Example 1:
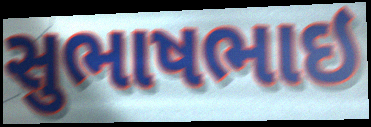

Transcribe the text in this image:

સુભાષભાઇ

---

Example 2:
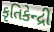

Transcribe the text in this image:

કૃતિકેન્દ્રી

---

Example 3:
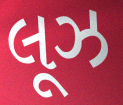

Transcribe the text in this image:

લૂઝ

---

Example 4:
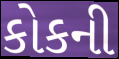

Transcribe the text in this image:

કોકની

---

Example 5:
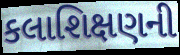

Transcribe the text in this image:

કલાશિક્ષણની